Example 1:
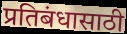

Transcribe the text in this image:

प्रतिबंधासाठी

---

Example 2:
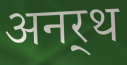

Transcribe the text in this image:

अनर्थ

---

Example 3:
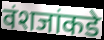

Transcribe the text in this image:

वंशजांकडे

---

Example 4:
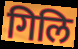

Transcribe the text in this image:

गिलि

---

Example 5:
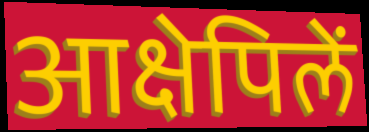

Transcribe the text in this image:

आक्षेपिलें